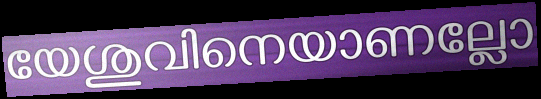
യേശുവിനെയാണല്ലോ